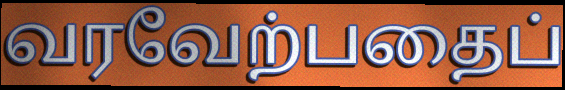
வரவேற்பதைப்